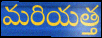
మరియత్త